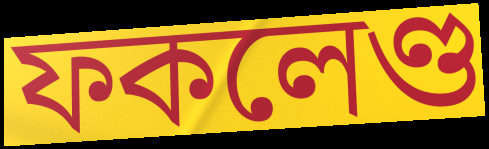
ফকলেণ্ড